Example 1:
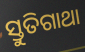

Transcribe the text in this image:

ସ୍ତୁତିଗାଥା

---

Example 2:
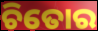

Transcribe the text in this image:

ଚିତୋର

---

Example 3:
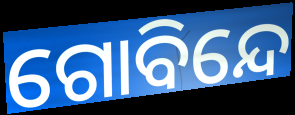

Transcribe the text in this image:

ଗୋବିନ୍ଦେ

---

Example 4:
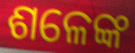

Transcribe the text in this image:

ଶଳେଙ୍କ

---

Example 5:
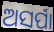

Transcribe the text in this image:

ଅସର୍ପା